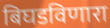
बिघडविणारा